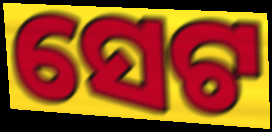
ସେଟ